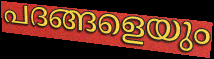
പദങ്ങളെയും